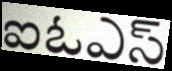
ఐఓఎస్